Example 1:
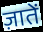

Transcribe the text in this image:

ज़ातें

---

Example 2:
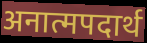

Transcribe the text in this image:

अनात्मपदार्थ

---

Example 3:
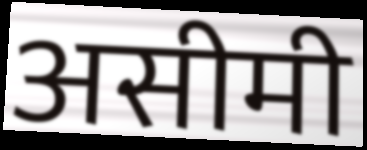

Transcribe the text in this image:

असीमी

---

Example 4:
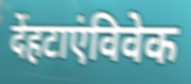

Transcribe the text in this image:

देंहटाएंविवेक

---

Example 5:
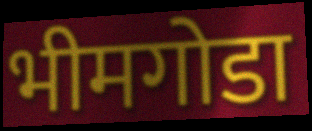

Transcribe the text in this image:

भीमगोडा